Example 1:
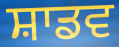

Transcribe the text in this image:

ਸ਼ਾਡਵ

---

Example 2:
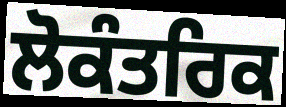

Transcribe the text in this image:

ਲੋਕੰਤਰਿਕ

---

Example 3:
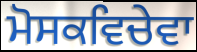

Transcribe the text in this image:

ਮੋਸਕਵਿਚੇਵਾ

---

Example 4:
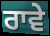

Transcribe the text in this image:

ਰਾਵੇ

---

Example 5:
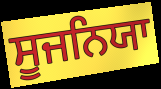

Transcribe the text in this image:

ਸੂਜਨਿਯਾ